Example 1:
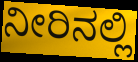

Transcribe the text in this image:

ನೀರಿನಲ್ಲಿ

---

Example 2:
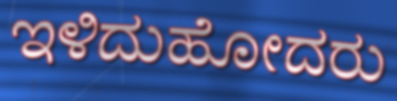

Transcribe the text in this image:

ಇಳಿದುಹೋದರು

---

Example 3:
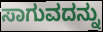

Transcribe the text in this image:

ಸಾಗುವದನ್ನು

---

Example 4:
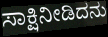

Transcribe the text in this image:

ಸಾಕ್ಷಿನೀಡಿದನು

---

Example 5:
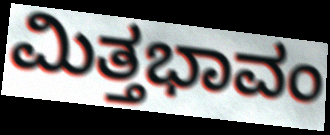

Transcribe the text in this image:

ಮಿತ್ತಭಾವಂ